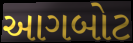
આગબોટ